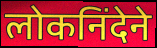
लोकनिंदेने